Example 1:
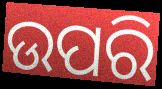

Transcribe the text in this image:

ଉପରି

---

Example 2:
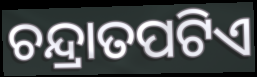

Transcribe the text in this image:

ଚନ୍ଦ୍ରାତପଟିଏ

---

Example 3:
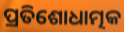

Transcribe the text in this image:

ପ୍ରତିଶୋଧାତ୍ମକ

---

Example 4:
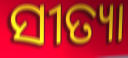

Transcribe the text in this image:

ସୀତ୍ୟା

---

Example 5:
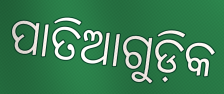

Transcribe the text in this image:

ପାତିଆଗୁଡ଼ିକ